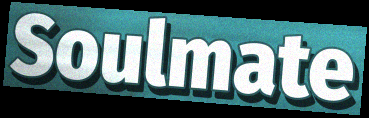
Soulmate